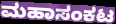
ಮಹಾಸಂಕಟ